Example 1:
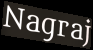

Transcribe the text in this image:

Nagraj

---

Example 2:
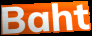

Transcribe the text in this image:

Baht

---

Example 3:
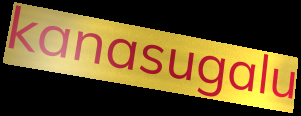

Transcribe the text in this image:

kanasugalu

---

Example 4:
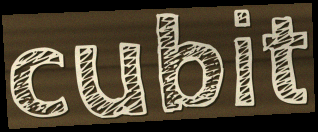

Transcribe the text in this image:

cubit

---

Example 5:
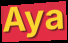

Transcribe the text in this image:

Aya